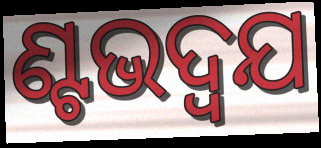
ଣ୍ଟଭଦ୍ଵଯ